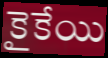
కైకేయి